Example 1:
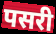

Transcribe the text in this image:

पसरी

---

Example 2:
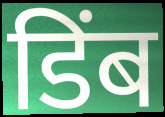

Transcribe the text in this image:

डिंब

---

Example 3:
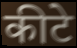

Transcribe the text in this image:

कीटे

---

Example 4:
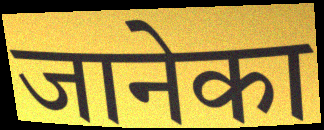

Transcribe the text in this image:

जानेका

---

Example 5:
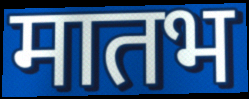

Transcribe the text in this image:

मातभ